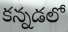
కన్నడలో